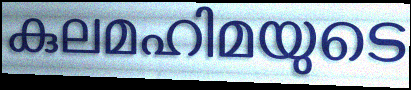
കുലമഹിമയുടെ